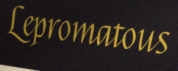
Lepromatous